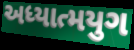
અધ્યાત્મયુગ